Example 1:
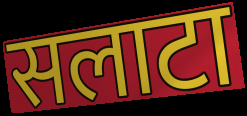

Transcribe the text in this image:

सलाटा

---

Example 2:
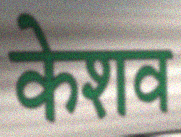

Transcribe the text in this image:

केशव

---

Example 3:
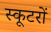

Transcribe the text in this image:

स्कूटरों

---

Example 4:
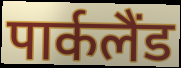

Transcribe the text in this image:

पार्कलैंड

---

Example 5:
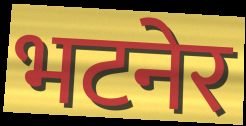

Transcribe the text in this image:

भटनेर